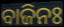
ବାଜିନଃ